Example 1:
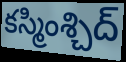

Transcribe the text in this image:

కస్మింశ్చిద్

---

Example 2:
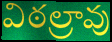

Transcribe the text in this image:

విఠల్రావు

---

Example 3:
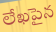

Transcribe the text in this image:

లేఖపైన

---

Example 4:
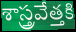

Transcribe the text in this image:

శాస్త్రవేత్తకి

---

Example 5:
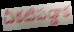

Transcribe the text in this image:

చీకటిపడ్డాక